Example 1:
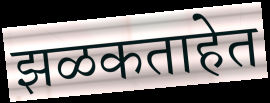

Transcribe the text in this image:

झळकताहेत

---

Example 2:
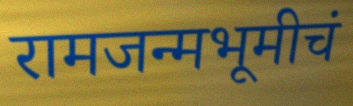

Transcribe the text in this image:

रामजन्मभूमीचं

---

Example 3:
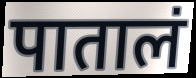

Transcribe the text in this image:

पातालं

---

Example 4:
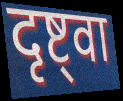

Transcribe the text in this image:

दृष्ट्‍वा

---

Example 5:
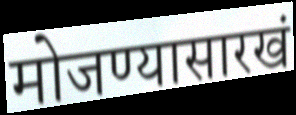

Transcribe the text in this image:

मोजण्यासारखं